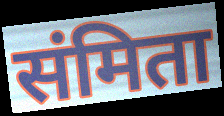
संमिता